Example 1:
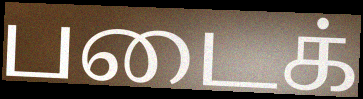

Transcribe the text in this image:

படைக்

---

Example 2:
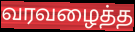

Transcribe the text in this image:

வரவழைத்த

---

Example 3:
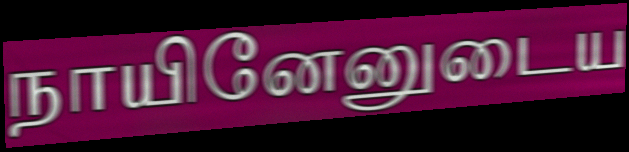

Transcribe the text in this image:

நாயினேனுடைய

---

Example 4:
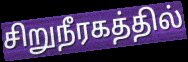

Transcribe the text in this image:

சிறுநீரகத்தில்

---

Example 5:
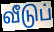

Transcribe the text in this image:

வீடுப்